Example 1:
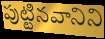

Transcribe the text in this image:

పుట్టినవానిని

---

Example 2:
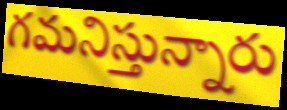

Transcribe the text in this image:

గమనిస్తున్నారు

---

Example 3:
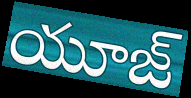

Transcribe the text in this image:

యూజ్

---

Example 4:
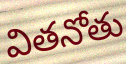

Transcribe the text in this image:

వితనోతు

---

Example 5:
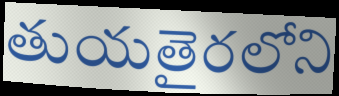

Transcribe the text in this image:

తుయతైరలోని